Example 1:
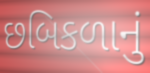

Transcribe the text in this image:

છબિકળાનું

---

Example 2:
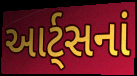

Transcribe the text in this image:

આર્ટ્સનાં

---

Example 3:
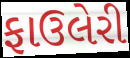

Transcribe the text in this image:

ફાઉલેરી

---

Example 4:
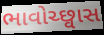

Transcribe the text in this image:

ભાવોચ્છ્વાસ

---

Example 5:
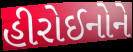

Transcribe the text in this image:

હીરોઈનોને